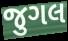
જુગલ